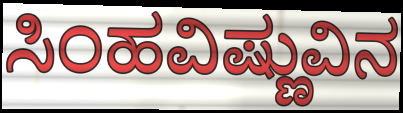
ಸಿಂಹವಿಷ್ಣುವಿನ